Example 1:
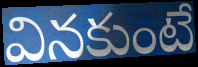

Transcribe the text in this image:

వినకుంటే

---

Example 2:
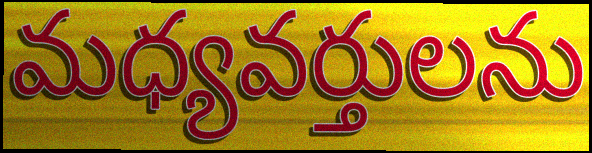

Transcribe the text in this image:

మధ్యవర్తులను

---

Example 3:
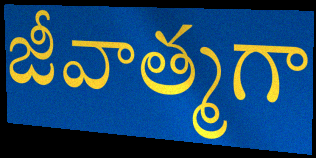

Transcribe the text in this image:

జీవాత్మగా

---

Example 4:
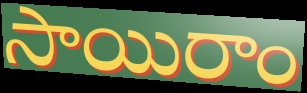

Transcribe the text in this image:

సాయిరాం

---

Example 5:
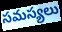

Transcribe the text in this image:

సమస్యలు